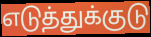
எடுத்துக்குடு